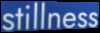
stillness